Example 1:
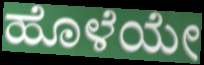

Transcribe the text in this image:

ಹೊಳೆಯೇ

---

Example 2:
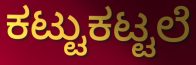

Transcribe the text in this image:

ಕಟ್ಟುಕಟ್ಟಲೆ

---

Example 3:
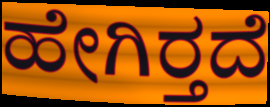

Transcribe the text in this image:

ಹೇಗಿರ್‍ತದೆ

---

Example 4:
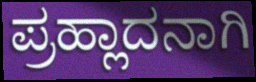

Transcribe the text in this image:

ಪ್ರಹ್ಲಾದನಾಗಿ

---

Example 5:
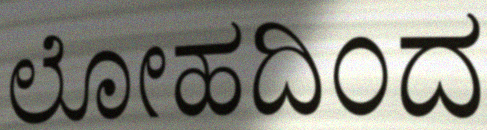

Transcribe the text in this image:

ಲೋಹದಿಂದ